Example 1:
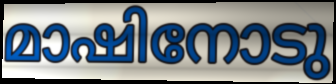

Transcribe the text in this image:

മാഷിനോടു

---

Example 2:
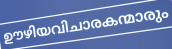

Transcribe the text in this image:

ഊഴിയവിചാരകന്മാരും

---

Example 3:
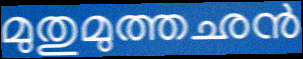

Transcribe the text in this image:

മുതുമുത്തഛൻ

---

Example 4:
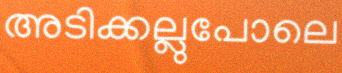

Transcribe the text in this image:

അടിക്കല്ലുപോലെ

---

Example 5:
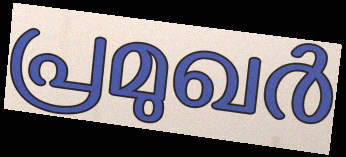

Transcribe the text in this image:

പ്രമുഖർ